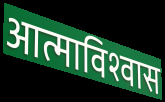
आत्माविश्वास